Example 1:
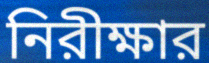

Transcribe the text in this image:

নিরীক্ষার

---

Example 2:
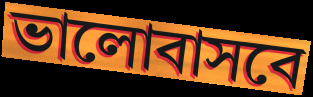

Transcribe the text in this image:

ভালোবাসবে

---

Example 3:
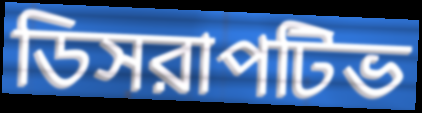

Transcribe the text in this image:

ডিসরাপটিভ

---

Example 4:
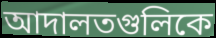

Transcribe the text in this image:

আদালতগুলিকে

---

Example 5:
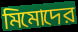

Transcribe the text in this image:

মিমোদের